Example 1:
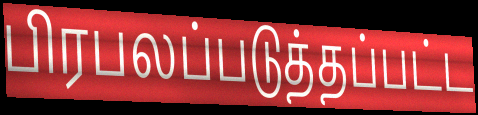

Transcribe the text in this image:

பிரபலப்படுத்தப்பட்ட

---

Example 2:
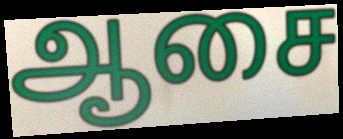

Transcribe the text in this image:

ஆசை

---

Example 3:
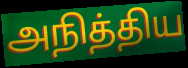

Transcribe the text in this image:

அநித்திய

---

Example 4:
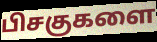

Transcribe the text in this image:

பிசகுகளை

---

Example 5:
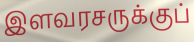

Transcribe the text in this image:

இளவரசருக்குப்